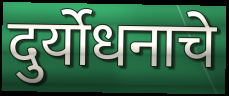
दुर्योधनाचे